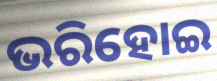
ଭରିହୋଇ